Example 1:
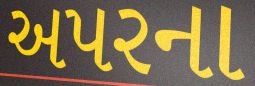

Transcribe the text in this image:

અપરના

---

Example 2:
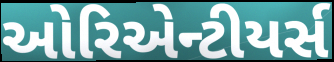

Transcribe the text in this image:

ઓરિએન્ટીયર્સ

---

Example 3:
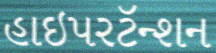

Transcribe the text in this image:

હાઇપરટૅન્શન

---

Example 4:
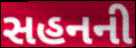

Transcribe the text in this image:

સહનની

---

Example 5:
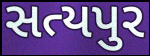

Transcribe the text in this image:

સત્યપુર